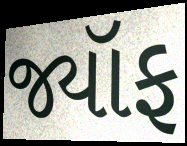
જ્યૉફ